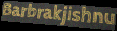
Barbrakjishnu